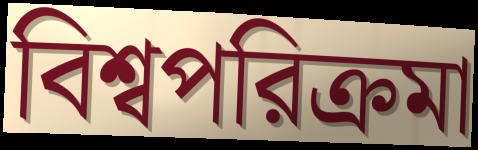
বিশ্বপরিক্রমা